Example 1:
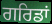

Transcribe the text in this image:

ਗਰਿਡਾਂ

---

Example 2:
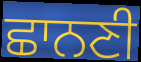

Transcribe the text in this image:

ਛਾਨਣੀ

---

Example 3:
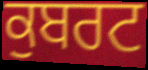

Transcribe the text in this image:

ਕੁਬਰਟ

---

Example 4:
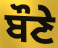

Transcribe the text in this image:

ਬੌਣੇ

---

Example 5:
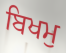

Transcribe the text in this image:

ਬਿਖਮੁ